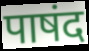
पाषंद